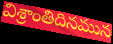
విశ్రాంతిదినమున